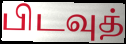
பிடவுத்